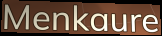
Menkaure